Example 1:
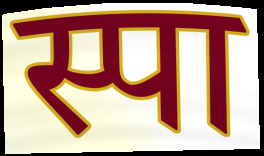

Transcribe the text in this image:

स्पा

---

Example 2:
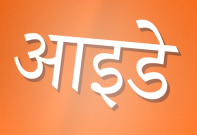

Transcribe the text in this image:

आइडे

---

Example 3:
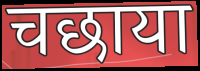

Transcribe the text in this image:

चछाया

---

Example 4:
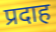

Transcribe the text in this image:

प्रदाह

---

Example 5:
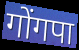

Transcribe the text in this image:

गोंगपा